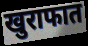
खुराफात